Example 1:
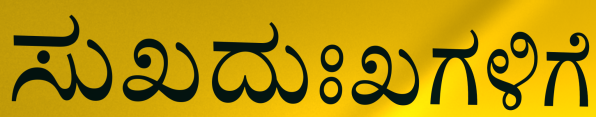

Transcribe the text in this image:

ಸುಖದುಃಖಗಳಿಗೆ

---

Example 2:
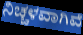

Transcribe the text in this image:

ನಿಚ್ಚಳವಾಗಿವೆ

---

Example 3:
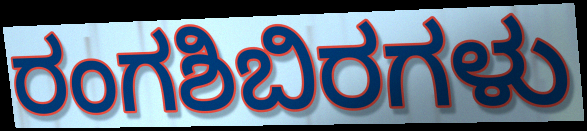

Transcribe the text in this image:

ರಂಗಶಿಬಿರಗಳು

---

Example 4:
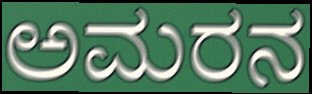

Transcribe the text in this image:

ಅಮರನ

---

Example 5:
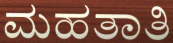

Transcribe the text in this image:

ಮಹತಾತಿ